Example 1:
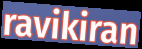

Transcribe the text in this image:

ravikiran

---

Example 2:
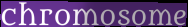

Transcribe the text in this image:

chromosome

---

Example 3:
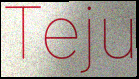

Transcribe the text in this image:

Teju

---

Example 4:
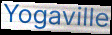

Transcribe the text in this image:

Yogaville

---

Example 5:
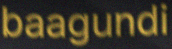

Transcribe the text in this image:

baagundi